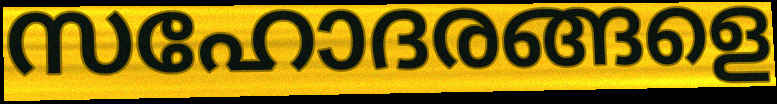
സഹോദരങ്ങളെ